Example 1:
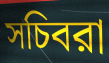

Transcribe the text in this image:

সচিবরা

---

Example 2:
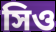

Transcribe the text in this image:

সিও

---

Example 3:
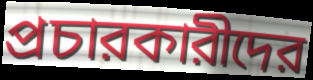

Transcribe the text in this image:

প্রচারকারীদের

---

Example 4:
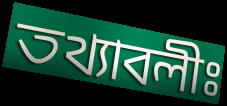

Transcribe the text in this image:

তথ্যাবলীঃ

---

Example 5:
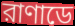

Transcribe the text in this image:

রাণাডে